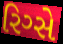
રિગ્સે